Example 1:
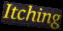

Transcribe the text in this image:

Itching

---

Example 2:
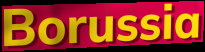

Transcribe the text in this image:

Borussia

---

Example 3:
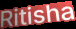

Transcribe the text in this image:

Ritisha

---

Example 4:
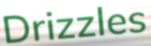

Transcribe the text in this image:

Drizzles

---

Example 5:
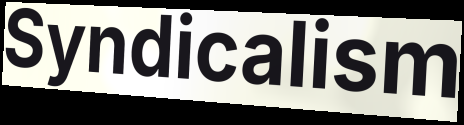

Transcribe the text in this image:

Syndicalism